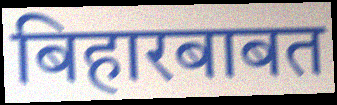
बिहारबाबत